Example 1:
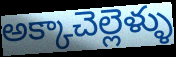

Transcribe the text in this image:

అక్కాచెల్లెళ్ళు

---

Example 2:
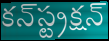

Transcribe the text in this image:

కన్‍స్ట్రక్షన్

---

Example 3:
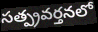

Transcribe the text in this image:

సత్ప్రవర్తనలో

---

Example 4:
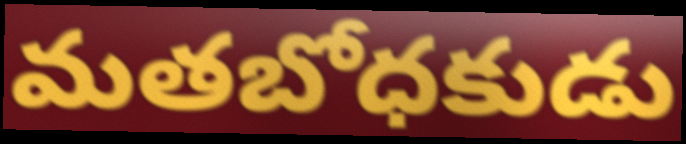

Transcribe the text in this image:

మతబోధకుడు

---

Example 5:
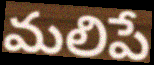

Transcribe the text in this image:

మలిపే